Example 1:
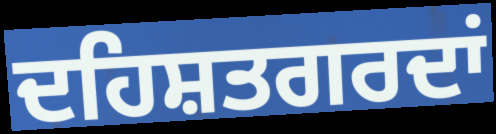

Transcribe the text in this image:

ਦਹਿਸ਼ਤਗਰਦਾਂ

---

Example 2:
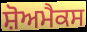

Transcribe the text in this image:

ਸ਼ੋਅਮੈਕਸ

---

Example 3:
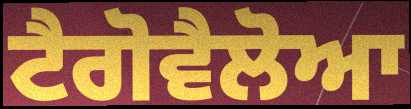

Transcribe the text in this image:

ਟੈਗੋਵੈਲੋਆ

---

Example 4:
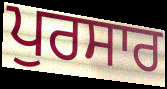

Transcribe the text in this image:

ਪੁਰਸਾਰ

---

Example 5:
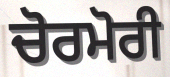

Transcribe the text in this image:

ਚੋਰਮੋਰੀ